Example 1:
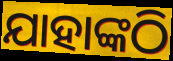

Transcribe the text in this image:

ଯାହାଙ୍କଠି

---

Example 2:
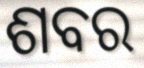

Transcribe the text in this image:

ଶବର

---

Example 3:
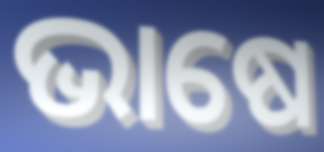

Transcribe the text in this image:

ଭାଷେ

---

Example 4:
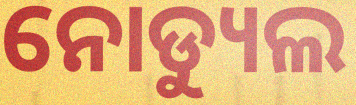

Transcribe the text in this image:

ନୋଡ୍ୟୁଲ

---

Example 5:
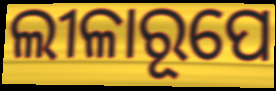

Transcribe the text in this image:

ଲୀଳାରୂପେ